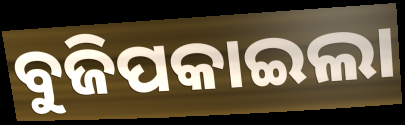
ବୁଜିପକାଇଲା